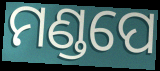
ମଣ୍ଡପେ